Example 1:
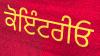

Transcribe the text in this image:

ਕੋਇੰਟਰੀਓ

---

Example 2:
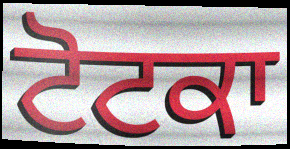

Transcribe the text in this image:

ਟੋਟਕਾ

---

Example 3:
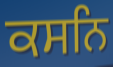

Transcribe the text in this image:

ਕਸਨਿ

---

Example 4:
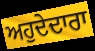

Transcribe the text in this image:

ਅਹੁਦੇਦਾਰਾ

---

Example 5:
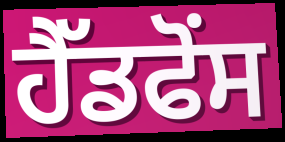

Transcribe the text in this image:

ਹੈੱਡਫੋਂਸ